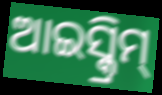
ଆଇସ୍କ୍ରିମ୍